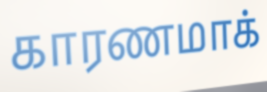
காரணமாக்